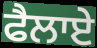
ਫੈਲਾਏ